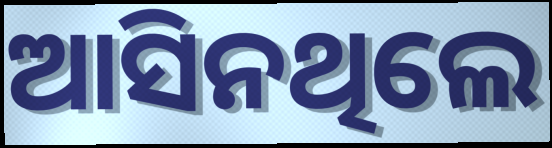
ଆସିନଥିଲେ